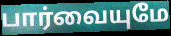
பார்வையுமே